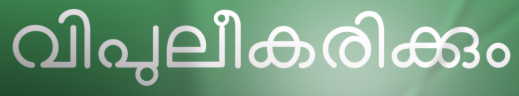
വിപുലീകരിക്കും